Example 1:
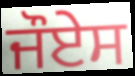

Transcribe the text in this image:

ਜੌਏਸ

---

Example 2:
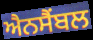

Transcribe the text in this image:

ਐਨਸੈਂਬਲ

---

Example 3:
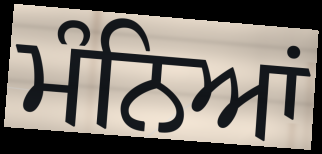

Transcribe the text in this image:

ਮੰਨਿਆਂ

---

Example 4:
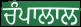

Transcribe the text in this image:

ਚੰਪਾਲਾਲ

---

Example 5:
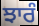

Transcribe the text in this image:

ਝਾਰੰ